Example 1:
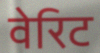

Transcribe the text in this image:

वेरिट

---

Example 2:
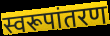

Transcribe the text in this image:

स्वरूपांतरण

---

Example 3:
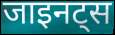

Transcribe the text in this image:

जाइनट्स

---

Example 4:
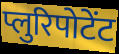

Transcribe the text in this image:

प्लुरिपोटेंट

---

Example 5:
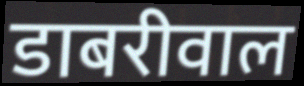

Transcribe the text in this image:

डाबरीवाल